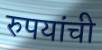
रुपयांची